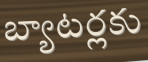
బ్యాటర్లకు